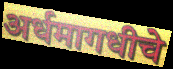
अर्धमागधीचे